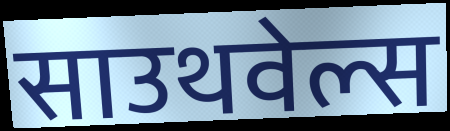
साउथवेल्स